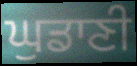
ਘੁਡਾਣੀ